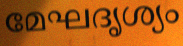
മേഘദൃശ്യം